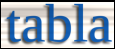
tabla